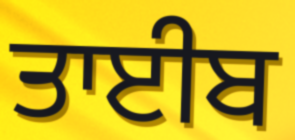
ਤਾਈਬ